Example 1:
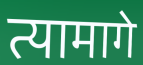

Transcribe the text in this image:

त्यामागे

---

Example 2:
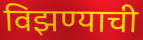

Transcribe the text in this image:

विझण्याची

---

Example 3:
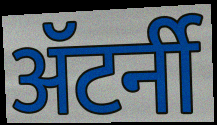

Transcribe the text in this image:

ॲटर्नी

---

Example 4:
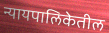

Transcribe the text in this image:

न्यायपालिकेतील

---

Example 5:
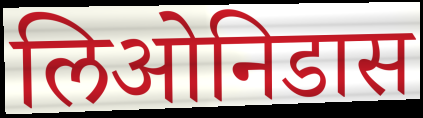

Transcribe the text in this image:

लिओनिडास